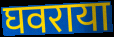
घवराया